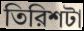
তিরিশটা